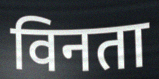
विनता